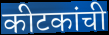
कीटकांची